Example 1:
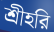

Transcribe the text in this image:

শ্রীহরি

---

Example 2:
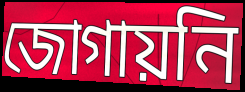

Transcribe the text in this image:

জোগায়নি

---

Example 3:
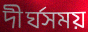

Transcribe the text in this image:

দীর্ঘসময়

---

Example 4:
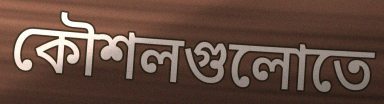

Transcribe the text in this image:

কৌশলগুলোতে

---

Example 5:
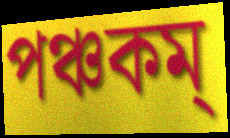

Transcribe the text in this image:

পঞ্চকম্